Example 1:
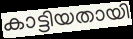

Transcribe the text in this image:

കാട്ടിയതായി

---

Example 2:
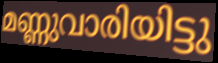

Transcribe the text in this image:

മണ്ണുവാരിയിട്ടു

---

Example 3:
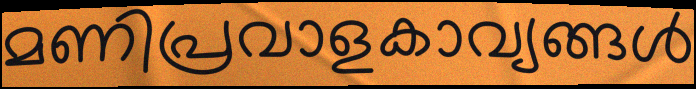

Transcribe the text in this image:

മണിപ്രവാളകാവ്യങ്ങൾ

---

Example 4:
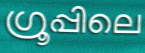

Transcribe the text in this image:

ഗ്രൂപ്പിലെ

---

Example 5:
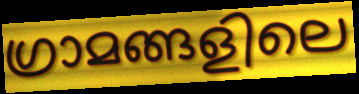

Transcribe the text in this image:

ഗ്രാമങ്ങളിലെ